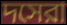
দসেরা